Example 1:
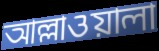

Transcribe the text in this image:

আল্লাওয়ালা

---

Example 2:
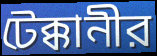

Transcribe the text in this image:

টেক্কানীর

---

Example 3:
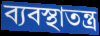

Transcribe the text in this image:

ব্যবস্থাতন্ত্র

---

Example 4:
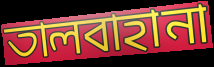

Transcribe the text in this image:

তালবাহানা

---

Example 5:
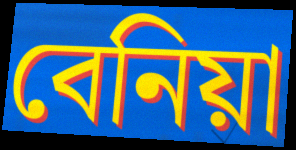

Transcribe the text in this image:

বেনিয়া